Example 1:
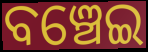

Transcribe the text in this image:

ବଞ୍ଚେଇ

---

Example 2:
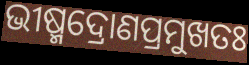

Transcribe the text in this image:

ଭୀଷ୍ମଦ୍ରୋଣପ୍ରମୁଖତଃ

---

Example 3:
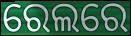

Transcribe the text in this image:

ରେଲରେ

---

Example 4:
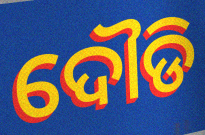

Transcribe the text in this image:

ଦୌଡି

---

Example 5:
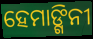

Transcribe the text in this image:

ହେମାଙ୍ଗିନୀ